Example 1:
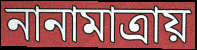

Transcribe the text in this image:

নানামাত্রায়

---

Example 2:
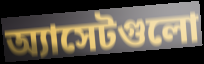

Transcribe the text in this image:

অ্যাসেটগুলো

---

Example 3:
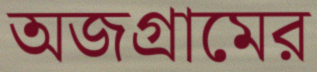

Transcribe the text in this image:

অজগ্রামের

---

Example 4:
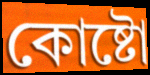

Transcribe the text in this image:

কোষ্টো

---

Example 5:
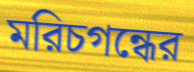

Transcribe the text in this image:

মরিচগন্ধের